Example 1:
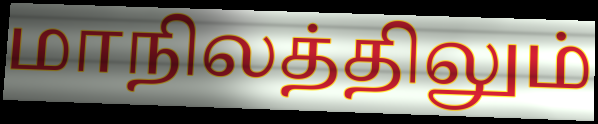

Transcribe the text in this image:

மாநிலத்திலும்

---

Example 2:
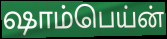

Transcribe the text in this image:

ஷாம்பெய்ன்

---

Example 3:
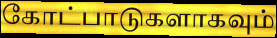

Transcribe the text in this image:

கோட்பாடுகளாகவும்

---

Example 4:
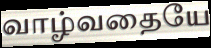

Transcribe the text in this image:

வாழ்வதையே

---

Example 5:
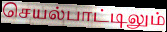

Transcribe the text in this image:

செயல்பாட்டிலும்